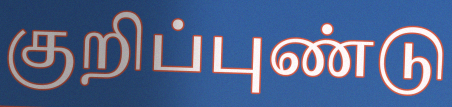
குறிப்புண்டு